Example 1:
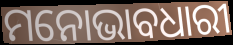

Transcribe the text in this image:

ମନୋଭାବଧାରୀ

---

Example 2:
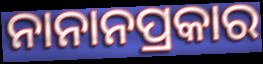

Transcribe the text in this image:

ନାନାନପ୍ରକାର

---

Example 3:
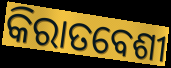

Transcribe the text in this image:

କିରାତବେଶୀ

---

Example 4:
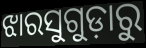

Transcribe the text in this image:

ଝାରସୁଗୁଡ଼ାରୁ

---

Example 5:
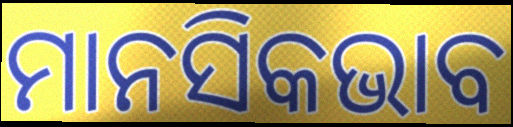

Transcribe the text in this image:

ମାନସିକଭାବ